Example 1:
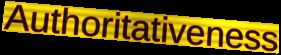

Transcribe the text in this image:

Authoritativeness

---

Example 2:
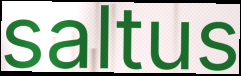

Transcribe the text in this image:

saltus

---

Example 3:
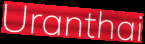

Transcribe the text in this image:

Uranthai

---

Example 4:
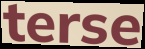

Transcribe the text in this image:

terse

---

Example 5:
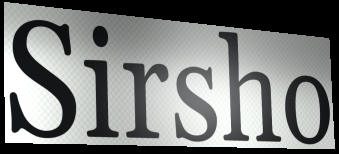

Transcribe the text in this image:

Sirsho